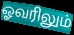
ஓவரிலும்